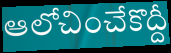
ఆలోచించేకొద్దీ